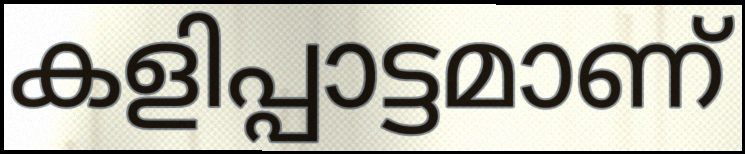
കളിപ്പാട്ടമാണ്